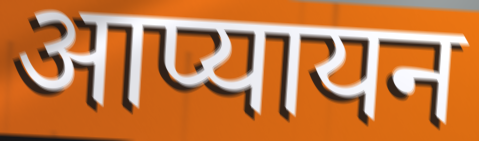
आप्यायन